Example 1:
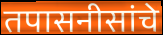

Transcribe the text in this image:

तपासनीसांचे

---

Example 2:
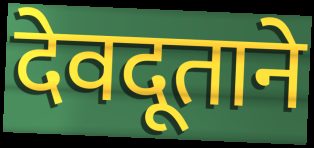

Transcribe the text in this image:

देवदूताने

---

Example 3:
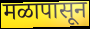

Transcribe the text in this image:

मळापासून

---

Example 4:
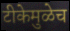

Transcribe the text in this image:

टीकेमुळेच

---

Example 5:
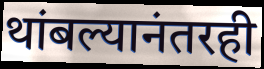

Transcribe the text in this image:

थांबल्यानंतरही